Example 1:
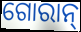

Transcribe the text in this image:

ଗୋରାନ୍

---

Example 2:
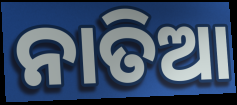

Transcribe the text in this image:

ନାତିଆ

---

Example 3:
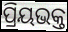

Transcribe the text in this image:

ପ୍ରିୟଭକ୍ତ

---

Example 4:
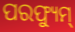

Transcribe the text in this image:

ପରଫ୍ୟୁମ୍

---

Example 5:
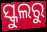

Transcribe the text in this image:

ସ୍କୁଲରୁ